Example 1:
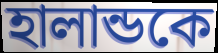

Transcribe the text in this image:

হালান্ডকে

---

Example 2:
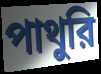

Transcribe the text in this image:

পাথুরি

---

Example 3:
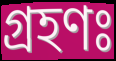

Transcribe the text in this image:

গ্রহণঃ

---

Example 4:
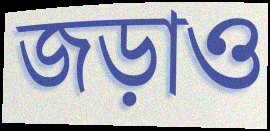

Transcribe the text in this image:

জড়াও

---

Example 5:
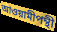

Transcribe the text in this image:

আওয়ামীপন্থী